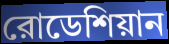
রোডেশিয়ান